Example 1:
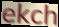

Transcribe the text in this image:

ekch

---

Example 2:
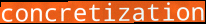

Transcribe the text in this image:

concretization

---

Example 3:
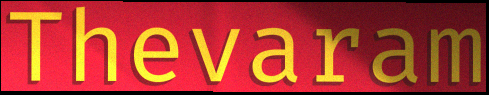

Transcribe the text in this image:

Thevaram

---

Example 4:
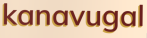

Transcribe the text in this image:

kanavugal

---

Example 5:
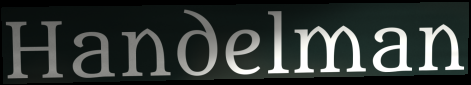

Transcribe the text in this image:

Handelman